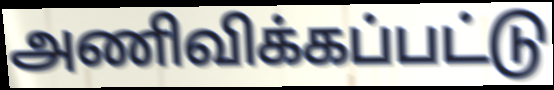
அணிவிக்கப்பட்டு